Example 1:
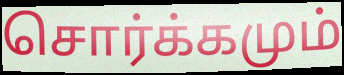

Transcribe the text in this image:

சொர்க்கமும்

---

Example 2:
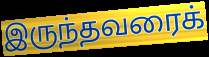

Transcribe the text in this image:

இருந்தவரைக்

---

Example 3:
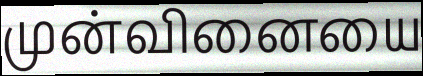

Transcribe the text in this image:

முன்வினையை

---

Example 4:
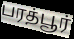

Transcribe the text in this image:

பரத்பூர்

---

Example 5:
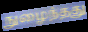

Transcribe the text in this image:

நுழைந்தது